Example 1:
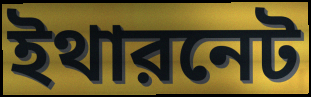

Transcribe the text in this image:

ইথারনেট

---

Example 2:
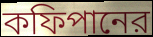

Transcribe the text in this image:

কফিপানের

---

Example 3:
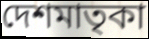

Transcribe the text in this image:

দেশমাতৃকা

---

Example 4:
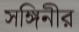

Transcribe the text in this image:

সঙ্গিনীর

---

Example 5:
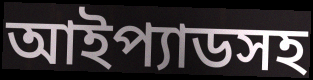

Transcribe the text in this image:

আইপ্যাডসহ